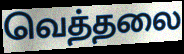
வெத்தலை